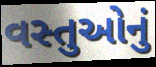
વસ્તુઓનું